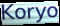
Koryo